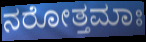
ನರೋತ್ತಮಾಃ